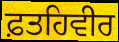
ਫ਼ਤਹਿਵੀਰ